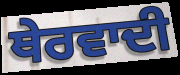
ਥੇਰਵਾਦੀ